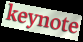
keynote